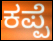
ಕಪ್ಪೆ